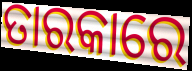
ତାରକାରେ